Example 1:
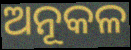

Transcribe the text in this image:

ଅନୂକଳ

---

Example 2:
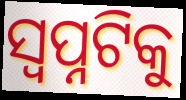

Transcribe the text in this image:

ସ୍ୱପ୍ନଟିକୁ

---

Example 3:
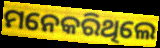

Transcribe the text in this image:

ମନେକରିଥିଲେ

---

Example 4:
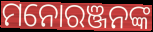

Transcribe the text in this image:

ମନୋରଞ୍ଜନଙ୍କ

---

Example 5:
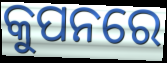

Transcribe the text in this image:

କୁପନରେ